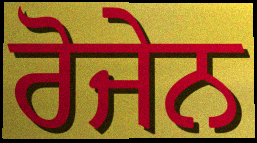
ਰੋਜੇਨ